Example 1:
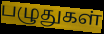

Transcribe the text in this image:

பழுதுகள்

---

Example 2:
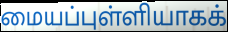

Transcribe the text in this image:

மையப்புள்ளியாகக்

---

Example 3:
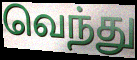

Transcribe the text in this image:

வெந்து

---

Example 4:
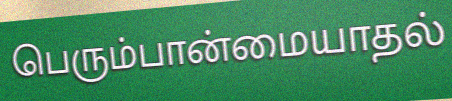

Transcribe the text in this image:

பெரும்பான்மையாதல்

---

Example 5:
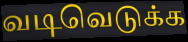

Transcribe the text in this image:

வடிவெடுக்க